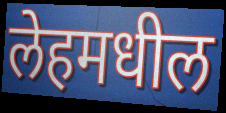
लेहमधील